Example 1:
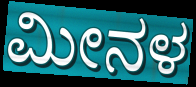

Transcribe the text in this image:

ಮೀನಳ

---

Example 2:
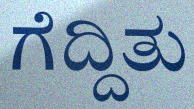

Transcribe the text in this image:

ಗೆದ್ದಿತು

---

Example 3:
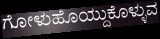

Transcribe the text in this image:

ಗೋಳುಹೊಯ್ದುಕೊಳ್ಳುವ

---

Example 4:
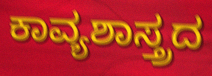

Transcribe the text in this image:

ಕಾವ್ಯಶಾಸ್ತ್ರದ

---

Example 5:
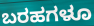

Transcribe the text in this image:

ಬರಹಗಳೂ